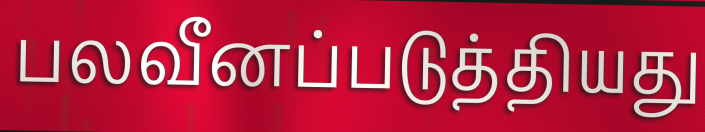
பலவீனப்படுத்தியது